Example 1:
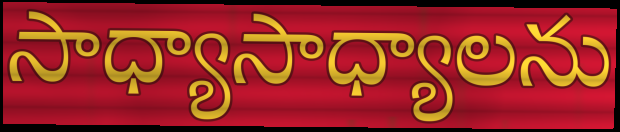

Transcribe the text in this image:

సాధ్యాసాధ్యాలను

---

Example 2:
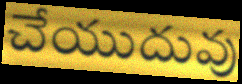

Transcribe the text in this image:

చేయుదువు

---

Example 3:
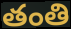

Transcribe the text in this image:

తంతి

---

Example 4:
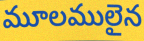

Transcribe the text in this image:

మూలములైన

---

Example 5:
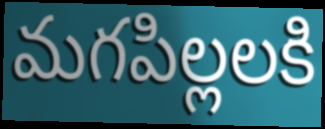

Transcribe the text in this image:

మగపిల్లలకి